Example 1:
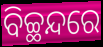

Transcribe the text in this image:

ବିଚ୍ଛନ୍ଦରେ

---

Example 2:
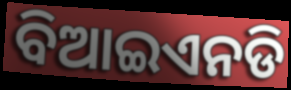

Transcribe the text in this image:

ବିଆଇଏନଡି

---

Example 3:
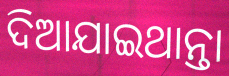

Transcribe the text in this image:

ଦିଆଯାଇଥାନ୍ତା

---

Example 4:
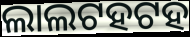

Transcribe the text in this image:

ଲାଲଟହଟହ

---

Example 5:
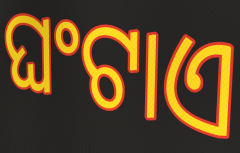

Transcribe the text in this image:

ଘଂଟାଏ